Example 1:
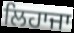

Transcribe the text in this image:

ਲਿਹਾਜਾ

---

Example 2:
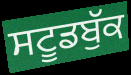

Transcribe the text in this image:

ਸਟੂਡਬੁੱਕ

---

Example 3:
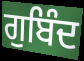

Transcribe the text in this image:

ਗੁਬਿੰਦ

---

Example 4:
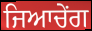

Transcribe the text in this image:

ਜਿਆਚੇਂਗ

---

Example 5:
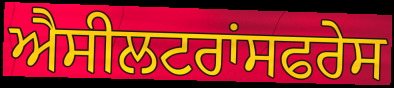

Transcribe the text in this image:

ਐਸੀਲਟਰਾਂਸਫਰੇਸ